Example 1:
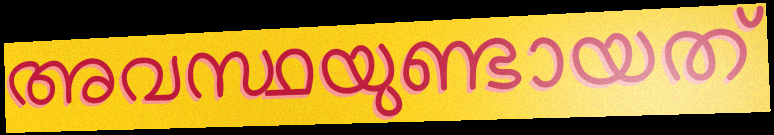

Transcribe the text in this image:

അവസ്ഥയുണ്ടായത്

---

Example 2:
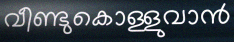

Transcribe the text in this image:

വീണ്ടുകൊള്ളുവാൻ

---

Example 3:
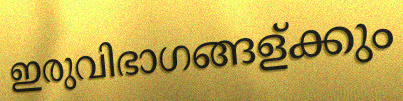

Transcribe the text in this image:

ഇരുവിഭാഗങ്ങള്ക്കും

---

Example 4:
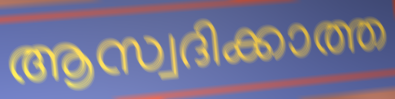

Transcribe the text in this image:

ആസ്വദിക്കാത്ത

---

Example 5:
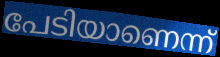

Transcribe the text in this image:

പേടിയാണെന്ന്